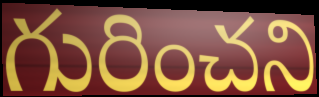
గురించని